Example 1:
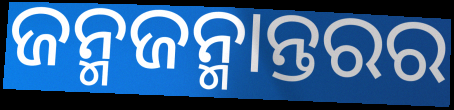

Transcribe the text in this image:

ଜନ୍ମଜନ୍ମାନ୍ତରର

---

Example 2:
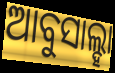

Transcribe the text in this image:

ଆବୁସାଲ୍ହା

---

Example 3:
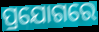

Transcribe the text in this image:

ପ୍ରଯୋଗରେ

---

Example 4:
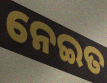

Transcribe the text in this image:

ନେଇତ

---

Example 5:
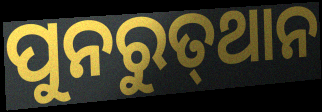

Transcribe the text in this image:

ପୁନରୁତ୍‍ଥାନ